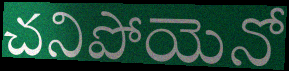
చనిపోయెనో